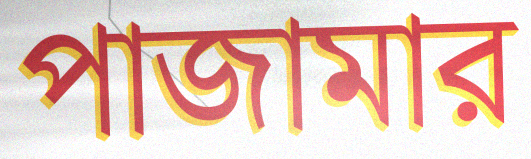
পাজামার